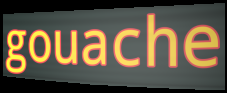
gouache